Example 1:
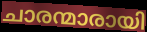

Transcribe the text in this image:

ചാരന്മാരായി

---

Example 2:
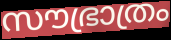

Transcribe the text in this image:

സൗഭ്രാത്രം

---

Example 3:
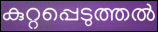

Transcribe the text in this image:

കുറ്റപ്പെടുത്തൽ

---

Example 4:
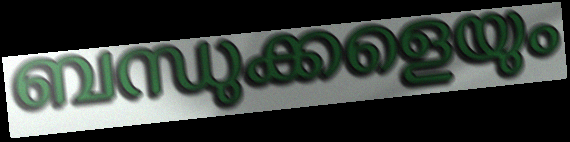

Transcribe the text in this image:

ബന്ധുക്കളെയും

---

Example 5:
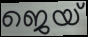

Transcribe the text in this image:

ജെയ്